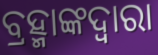
ବ୍ରହ୍ମାଙ୍କଦ୍ୱାରା